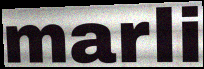
marli